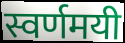
स्वर्णमयी